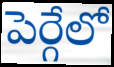
పెర్గేలో